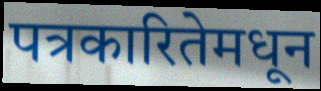
पत्रकारितेमधून